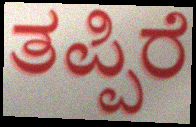
ತಪ್ಪಿರೆ